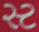
સ્ટ